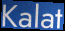
Kalat